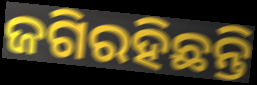
ଜଗିରହିଛନ୍ତି